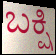
ಬಕ್ಷಿ